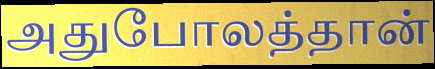
அதுபோலத்தான்